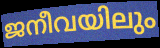
ജനീവയിലും